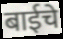
बाईचे